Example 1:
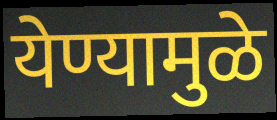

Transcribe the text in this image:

येण्यामुळे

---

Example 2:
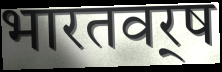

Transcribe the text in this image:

भारतवर्ष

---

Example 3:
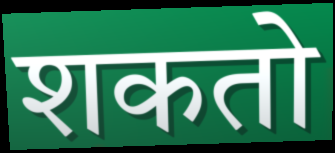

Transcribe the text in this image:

शकतो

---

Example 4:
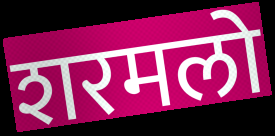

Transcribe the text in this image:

शरमलो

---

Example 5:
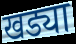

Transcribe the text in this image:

खड्या